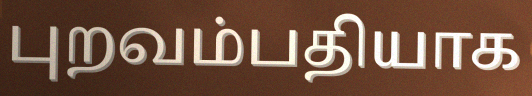
புறவம்பதியாக